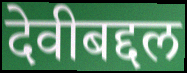
देवीबद्दल